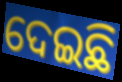
ଦେଇଛି